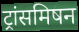
ट्रांसमिषन